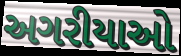
અગરીયાઓ